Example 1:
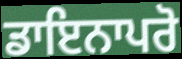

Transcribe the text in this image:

ਡਾਇਨਾਪਰੋ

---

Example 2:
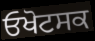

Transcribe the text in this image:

ਓਖੋਟਸਕ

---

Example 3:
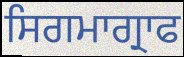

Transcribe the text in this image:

ਸਿਗਮਾਗ੍ਰਾਫ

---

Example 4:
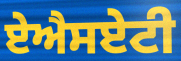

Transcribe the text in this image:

ਏਐਸਏਟੀ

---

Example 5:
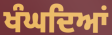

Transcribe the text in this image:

ਖੰਘਦਿਆਂ